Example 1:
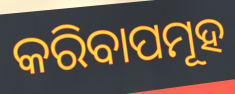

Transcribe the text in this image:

କରିବାପମୂହ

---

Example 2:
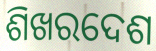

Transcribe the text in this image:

ଶିଖରଦେଶ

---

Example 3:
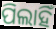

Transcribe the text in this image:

ପିଲାହିଁ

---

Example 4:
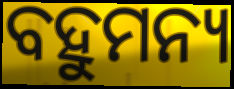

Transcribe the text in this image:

ବହୁମନ୍ୟ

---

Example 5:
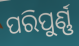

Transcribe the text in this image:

ପରିପୁର୍ଣ୍ଣ